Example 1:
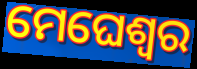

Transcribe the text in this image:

ମେଘେଶ୍ୱର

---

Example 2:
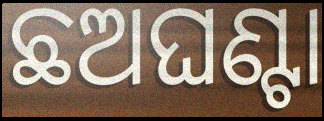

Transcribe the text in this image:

ଛଅଘଣ୍ଟା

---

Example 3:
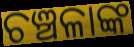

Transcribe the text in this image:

ଚଞ୍ଚଳାଙ୍କ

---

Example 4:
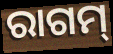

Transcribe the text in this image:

ରାଗମ୍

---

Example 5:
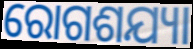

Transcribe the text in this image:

ରୋଗଶଯ୍ୟା